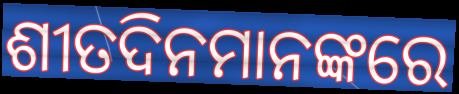
ଶୀତଦିନମାନଙ୍କରେ